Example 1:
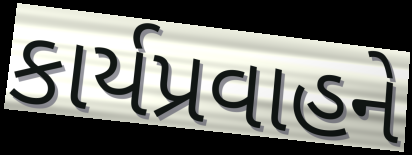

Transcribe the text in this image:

કાર્યપ્રવાહને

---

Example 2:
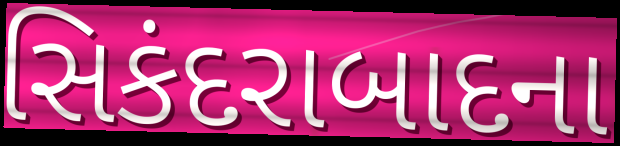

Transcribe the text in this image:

સિકંદરાબાદના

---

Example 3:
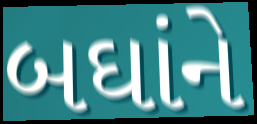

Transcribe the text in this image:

બઘાંને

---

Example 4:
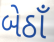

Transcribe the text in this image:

બેઠાઁ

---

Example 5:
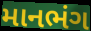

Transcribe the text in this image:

માનભંગ